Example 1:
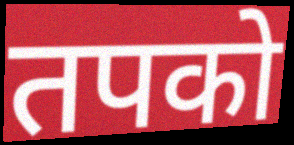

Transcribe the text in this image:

तपको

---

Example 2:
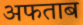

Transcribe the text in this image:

अफताब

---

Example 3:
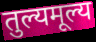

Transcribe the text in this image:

तुल्यमूल्य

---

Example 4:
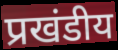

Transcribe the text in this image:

प्रखंडीय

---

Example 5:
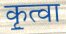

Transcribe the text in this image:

कृ॒त्वा